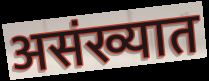
असंख्यात